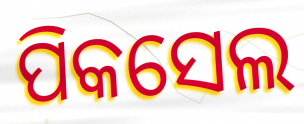
ପିକସେଲ